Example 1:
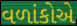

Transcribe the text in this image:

વળાંકોએ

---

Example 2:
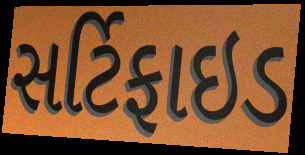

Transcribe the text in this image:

સર્ટિફાઇડ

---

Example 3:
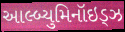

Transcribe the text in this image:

આલ્બ્યુમિનૉઇડ્ઝ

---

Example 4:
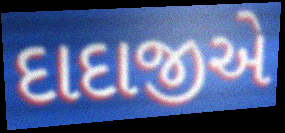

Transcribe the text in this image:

દાદાજીએ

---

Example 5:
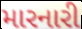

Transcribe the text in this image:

મારનારી